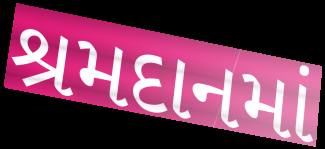
શ્રમદાનમાં